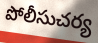
పోలీసుచర్య